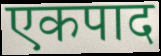
एकपाद